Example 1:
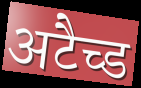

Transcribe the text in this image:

अटैच्ड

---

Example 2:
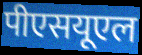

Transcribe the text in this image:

पीएसयूएल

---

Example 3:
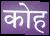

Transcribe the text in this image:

कोह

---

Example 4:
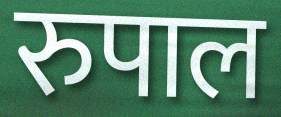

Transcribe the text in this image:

रुपाल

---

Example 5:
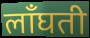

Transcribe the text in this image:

लाँघती